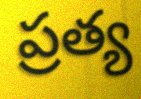
ప్రత్య